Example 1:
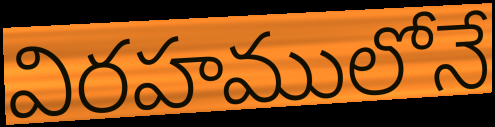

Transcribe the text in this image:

విరహములోనే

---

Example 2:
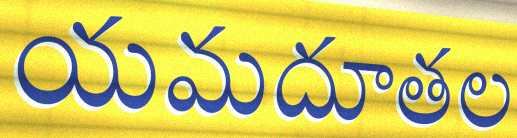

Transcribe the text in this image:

యమదూతల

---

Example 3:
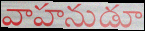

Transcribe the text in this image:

వాహనుడూ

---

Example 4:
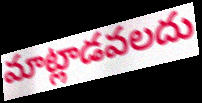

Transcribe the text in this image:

మాట్లాడవలదు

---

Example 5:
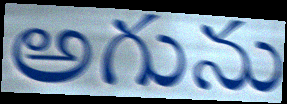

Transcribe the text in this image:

అగును